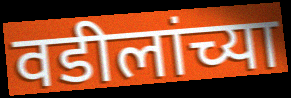
वडीलांच्या